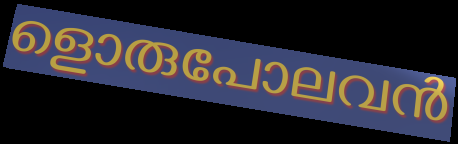
ളൊരുപോലവൻ